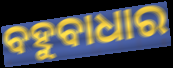
ବହୁବାଧାର